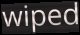
wiped